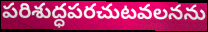
పరిశుద్ధపరచుటవలనను